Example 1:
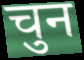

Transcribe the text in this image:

चुन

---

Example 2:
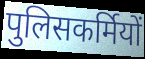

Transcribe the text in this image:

पुलिसकर्मियों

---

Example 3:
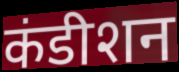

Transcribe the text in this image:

कंडीशन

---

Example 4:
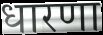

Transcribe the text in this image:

धारणा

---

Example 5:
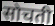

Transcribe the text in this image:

सोचती